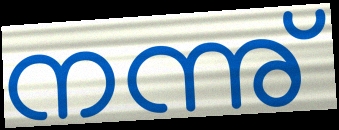
നന്നു്